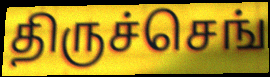
திருச்செங்